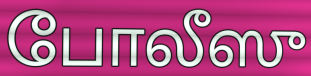
போலீஸு